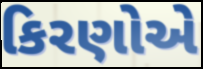
કિરણોએ